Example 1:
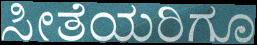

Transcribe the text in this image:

ಸೀತೆಯರಿಗೂ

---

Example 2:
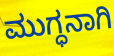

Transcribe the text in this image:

ಮುಗ್ಧನಾಗಿ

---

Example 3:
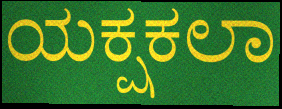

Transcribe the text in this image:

ಯಕ್ಷಕಲಾ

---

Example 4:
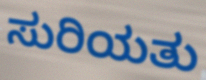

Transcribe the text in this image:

ಸುರಿಯತು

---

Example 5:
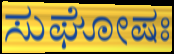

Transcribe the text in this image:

ಸುಘೋಷಃ